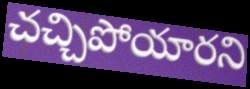
చచ్చిపోయారని